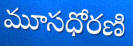
మూసధోరణి